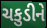
ચકુડીને